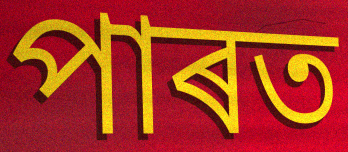
পাৰত